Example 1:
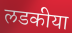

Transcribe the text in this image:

लडकीया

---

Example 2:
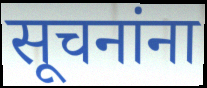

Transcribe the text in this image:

सूचनांना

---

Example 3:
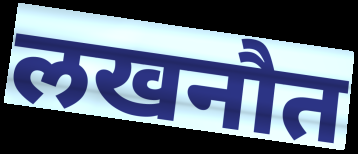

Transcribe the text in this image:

लखनौत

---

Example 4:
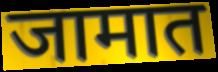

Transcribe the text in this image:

जामात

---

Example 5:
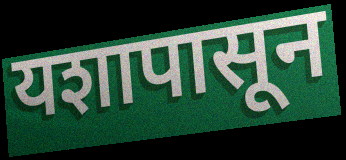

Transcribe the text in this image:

यशापासून